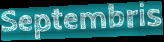
Septembris